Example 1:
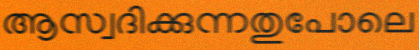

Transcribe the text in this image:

ആസ്വദിക്കുന്നതുപോലെ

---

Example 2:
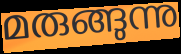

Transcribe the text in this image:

മരുങ്ങുന്നു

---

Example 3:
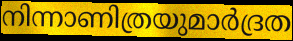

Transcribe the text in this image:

നിന്നാണിത്രയുമാർദ്രത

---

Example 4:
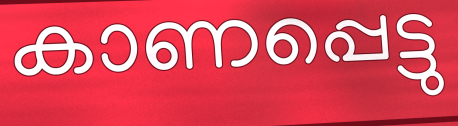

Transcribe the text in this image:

കാണപ്പെട്ടു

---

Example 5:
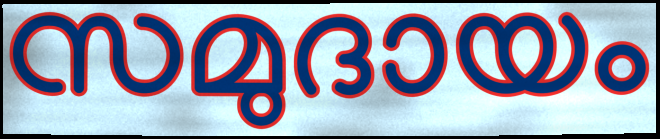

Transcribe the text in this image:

സമുദായം